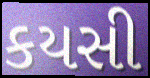
કયસી